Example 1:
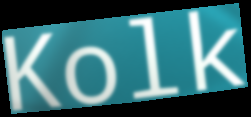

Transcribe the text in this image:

Kolk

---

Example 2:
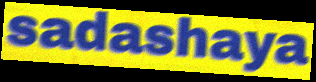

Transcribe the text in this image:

sadashaya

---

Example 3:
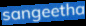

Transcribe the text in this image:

sangeetha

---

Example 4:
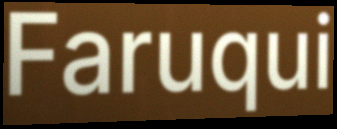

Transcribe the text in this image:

Faruqui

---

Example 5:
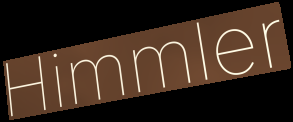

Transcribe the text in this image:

Himmler